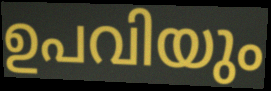
ഉപവിയും